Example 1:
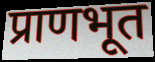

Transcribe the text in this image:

प्राणभूत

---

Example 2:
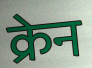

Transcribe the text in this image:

क्रेन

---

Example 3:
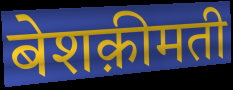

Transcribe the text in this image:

बेशक़ीमती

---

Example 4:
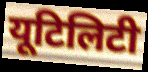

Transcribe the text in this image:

यूटिलिटी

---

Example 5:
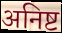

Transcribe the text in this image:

अनिष्ट